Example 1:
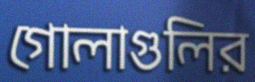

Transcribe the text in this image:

গোলাগুলির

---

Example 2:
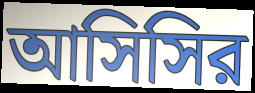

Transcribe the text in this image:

আসিসির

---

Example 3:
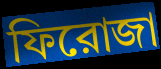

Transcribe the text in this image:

ফিরোজা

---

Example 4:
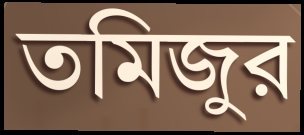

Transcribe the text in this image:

তমিজুর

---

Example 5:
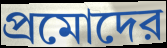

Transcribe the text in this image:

প্রমোদের